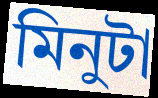
মিনুটা